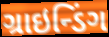
ગ્રાઇન્ડિંગ